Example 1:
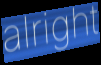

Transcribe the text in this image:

alright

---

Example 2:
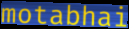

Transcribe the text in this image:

motabhai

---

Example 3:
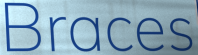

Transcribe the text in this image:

Braces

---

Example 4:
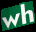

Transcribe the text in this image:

wh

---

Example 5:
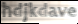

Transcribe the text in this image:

hdjkdave